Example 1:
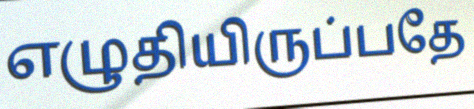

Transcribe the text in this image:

எழுதியிருப்பதே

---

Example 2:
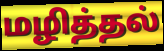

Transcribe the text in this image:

மழித்தல்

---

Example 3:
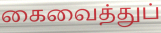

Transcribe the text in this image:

கைவைத்துப்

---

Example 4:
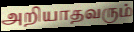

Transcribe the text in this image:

அறியாதவரும்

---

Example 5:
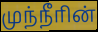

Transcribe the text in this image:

முந்நீரின்